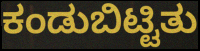
ಕಂಡುಬಿಟ್ಟಿತು